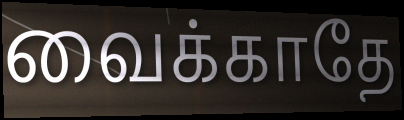
வைக்காதே